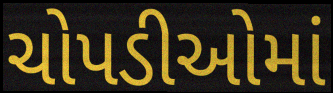
ચોપડીઓમાં